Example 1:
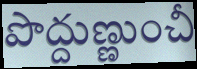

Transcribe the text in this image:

పొద్దుణ్ణుంచీ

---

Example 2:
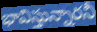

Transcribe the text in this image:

భావిస్తున్నారనీ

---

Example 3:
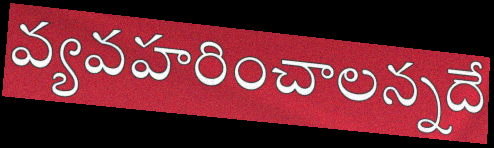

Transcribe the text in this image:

వ్యవహరించాలన్నదే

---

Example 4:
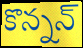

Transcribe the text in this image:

కొన్నన్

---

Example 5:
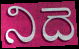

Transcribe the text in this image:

నిదె